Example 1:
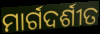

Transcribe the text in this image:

ମାର୍ଗଦର୍ଶୀତ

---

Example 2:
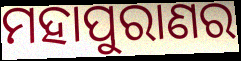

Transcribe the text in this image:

ମହାପୁରାଣର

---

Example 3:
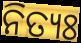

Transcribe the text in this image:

ନିତ୍ଯଃ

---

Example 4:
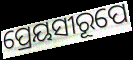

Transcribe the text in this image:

ପ୍ରେୟସୀରୂପେ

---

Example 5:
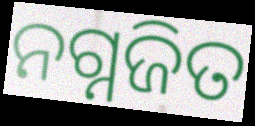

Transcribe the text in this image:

ନଗ୍ନଜିତ